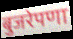
बुजरेपणा